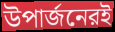
উপার্জনেরই